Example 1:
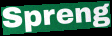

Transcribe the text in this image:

Spreng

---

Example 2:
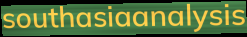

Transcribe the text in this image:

southasiaanalysis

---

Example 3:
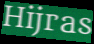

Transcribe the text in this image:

Hijras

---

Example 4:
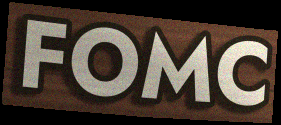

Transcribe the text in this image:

FOMC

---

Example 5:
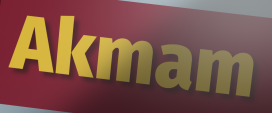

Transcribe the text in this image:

Akmam